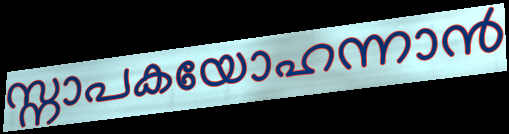
സ്നാപകയോഹന്നാൻ